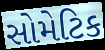
સોમેટિક